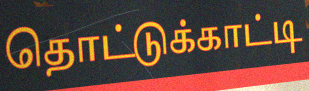
தொட்டுக்காட்டி